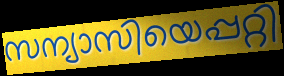
സന്യാസിയെപ്പറ്റി